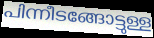
പിന്നീടങ്ങോട്ടുള്ള